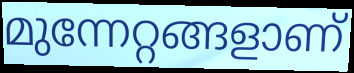
മുന്നേറ്റങ്ങളാണ്